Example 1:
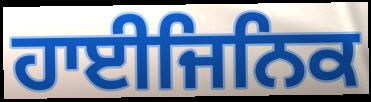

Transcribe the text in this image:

ਹਾਈਜਿਨਿਕ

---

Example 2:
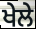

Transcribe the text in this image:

ਖੇਲੇ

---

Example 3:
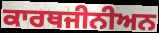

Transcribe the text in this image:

ਕਾਰਥਜੀਨੀਅਨ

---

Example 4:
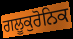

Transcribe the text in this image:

ਗਲੂਕੁਰੋਨਿਕ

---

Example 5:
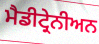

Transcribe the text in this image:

ਮੈਡੀਟ੍ਰੇਨੀਅਨ